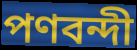
পণবন্দী